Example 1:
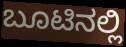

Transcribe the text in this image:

ಬೂಟಿನಲ್ಲಿ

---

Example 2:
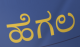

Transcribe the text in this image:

ಹೆಗಲ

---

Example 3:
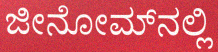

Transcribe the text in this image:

ಜೀನೋಮ್‌ನಲ್ಲಿ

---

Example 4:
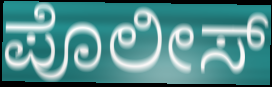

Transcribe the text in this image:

ಪೊಲೀಸ್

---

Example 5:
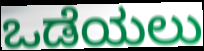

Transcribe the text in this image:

ಒಡೆಯಲು